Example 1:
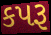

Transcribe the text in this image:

કપરૂ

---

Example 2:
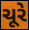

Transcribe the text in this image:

ચૂરે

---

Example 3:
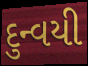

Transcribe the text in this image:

દુન્વયી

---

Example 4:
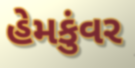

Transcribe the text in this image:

હેમકુંવર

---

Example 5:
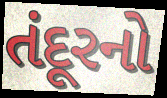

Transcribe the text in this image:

તંદૂરનો